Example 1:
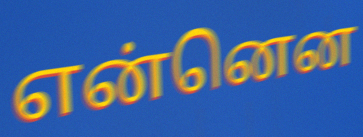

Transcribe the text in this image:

என்னென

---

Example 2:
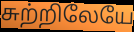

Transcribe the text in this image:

சுற்றிலேயே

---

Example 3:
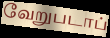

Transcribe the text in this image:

வேறுபடாப்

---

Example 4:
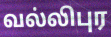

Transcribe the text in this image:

வல்லிபுர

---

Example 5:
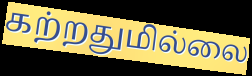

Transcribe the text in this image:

கற்றதுமில்லை